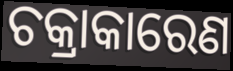
ଚକ୍ରାକାରେଣ